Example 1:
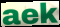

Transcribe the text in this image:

aek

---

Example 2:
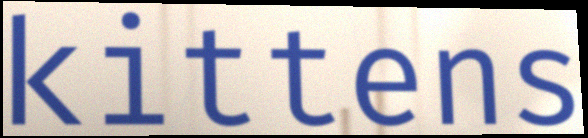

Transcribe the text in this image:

kittens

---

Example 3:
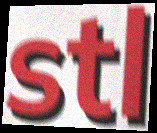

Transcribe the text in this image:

stl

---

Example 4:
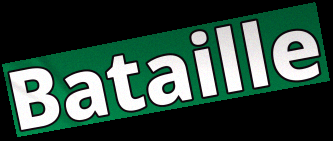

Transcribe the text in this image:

Bataille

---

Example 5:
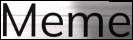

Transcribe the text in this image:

Meme